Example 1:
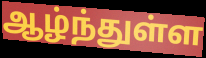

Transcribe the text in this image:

ஆழ்ந்துள்ள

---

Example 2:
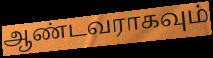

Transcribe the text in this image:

ஆண்டவராகவும்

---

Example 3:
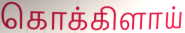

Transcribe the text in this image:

கொக்கிளாய்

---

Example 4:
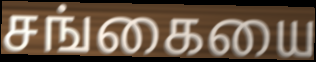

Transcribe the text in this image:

சங்கையை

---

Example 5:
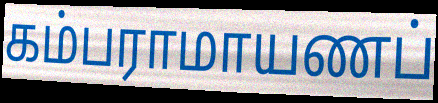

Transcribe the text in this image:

கம்பராமாயணப்